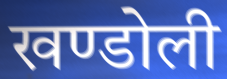
खण्डोली